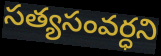
సత్యసంవర్ధని